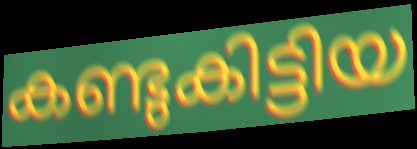
കണ്ടുകിട്ടിയ